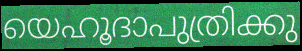
യെഹൂദാപുത്രിക്കു